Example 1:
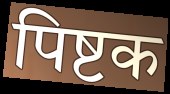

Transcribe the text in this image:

पिष्टक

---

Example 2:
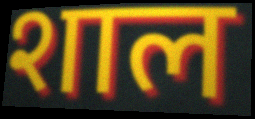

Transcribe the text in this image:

शाल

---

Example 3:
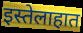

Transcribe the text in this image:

इस्तेलाहात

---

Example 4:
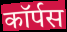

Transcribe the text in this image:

कॉर्पस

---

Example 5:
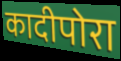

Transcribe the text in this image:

कादीपोरा